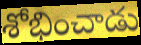
శోభించాడు